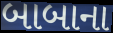
બાબાના